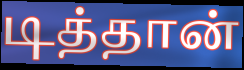
டித்தான்